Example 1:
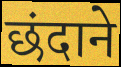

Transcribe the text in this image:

छंदाने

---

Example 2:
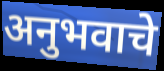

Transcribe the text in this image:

अनुभवाचे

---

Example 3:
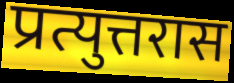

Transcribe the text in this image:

प्रत्युत्तरास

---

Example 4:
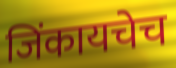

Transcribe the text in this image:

जिंकायचेच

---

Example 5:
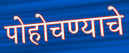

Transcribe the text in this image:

पोहोचण्याचे